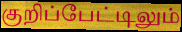
குறிப்பேட்டிலும்